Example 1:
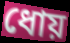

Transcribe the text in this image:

ধোয়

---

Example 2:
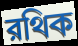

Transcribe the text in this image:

রথিক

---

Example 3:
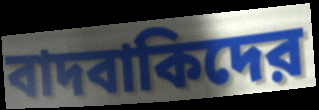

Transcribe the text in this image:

বাদবাকিদের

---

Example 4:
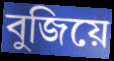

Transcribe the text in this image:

বুজিয়ে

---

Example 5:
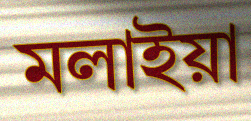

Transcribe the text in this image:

মলাইয়া